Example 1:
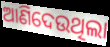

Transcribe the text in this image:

ଆଣିଦେଉଥିଲା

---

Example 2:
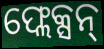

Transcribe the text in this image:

ଫ୍ଲେକ୍ସନ୍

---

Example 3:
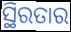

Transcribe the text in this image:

ସ୍ଥିରତାର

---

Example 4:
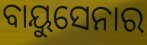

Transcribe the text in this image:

ବାୟୁସେନାର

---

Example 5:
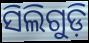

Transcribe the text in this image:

ସିଲିଗୁଡ଼ି